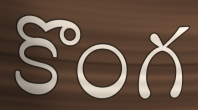
కొంగ